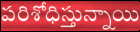
పరిశోధిస్తున్నాయి